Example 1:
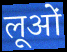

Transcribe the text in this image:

लूओं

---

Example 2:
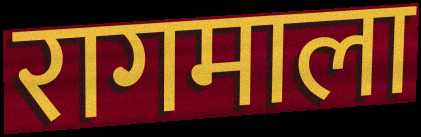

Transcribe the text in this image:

रागमाला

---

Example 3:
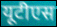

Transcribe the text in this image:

यूटीएस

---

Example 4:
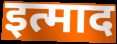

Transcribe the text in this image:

इत्माद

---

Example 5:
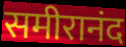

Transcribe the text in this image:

समीरानंद